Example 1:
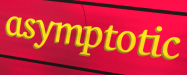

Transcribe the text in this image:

asymptotic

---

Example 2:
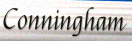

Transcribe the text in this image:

Conningham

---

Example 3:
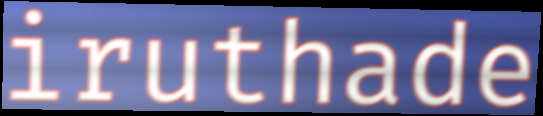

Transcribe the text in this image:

iruthade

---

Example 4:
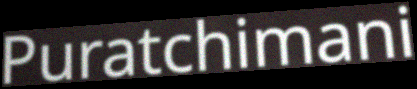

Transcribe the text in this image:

Puratchimani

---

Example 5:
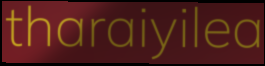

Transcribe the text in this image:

tharaiyilea